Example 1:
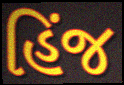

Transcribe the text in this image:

હિંજ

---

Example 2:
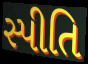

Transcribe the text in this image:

સ્પીતિ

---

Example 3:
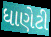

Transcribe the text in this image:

ધાણેટી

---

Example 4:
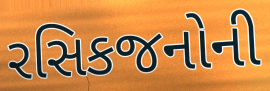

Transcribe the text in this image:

રસિકજનોની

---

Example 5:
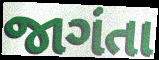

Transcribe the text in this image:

જાગંતા